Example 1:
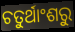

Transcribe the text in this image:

ଚତୁର୍ଥାଂଶରୁ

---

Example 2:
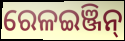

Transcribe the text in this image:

ରେଳଇଞ୍ଜିନ୍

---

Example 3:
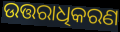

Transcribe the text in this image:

ଉତ୍ତରାଧିକରଣ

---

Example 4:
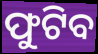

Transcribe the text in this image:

ଫୁଟିବ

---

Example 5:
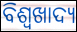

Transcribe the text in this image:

ବିଶ୍ୱଖାଦ୍ୟ